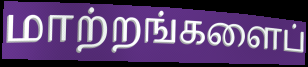
மாற்றங்களைப்